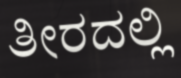
ತೀರದಲ್ಲಿ